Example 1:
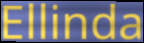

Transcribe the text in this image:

Ellinda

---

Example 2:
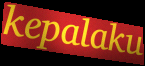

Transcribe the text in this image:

kepalaku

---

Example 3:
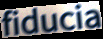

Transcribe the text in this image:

fiducia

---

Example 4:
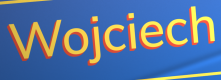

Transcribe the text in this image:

Wojciech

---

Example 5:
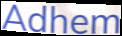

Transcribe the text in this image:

Adhem